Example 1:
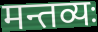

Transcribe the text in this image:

मन्तव्यः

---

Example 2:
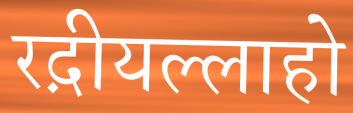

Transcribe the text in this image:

रद़ीयल्लाहो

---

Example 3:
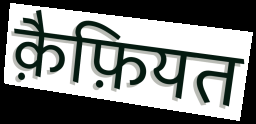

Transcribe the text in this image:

क़ैफ़ियत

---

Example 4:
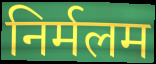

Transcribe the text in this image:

निर्मलम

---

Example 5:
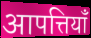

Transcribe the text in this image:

आपत्तियॉं